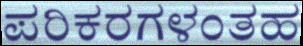
ಪರಿಕರಗಳಂತಹ